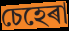
চেহেৰা